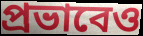
প্রভাবেও